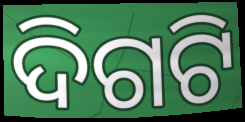
ଦିଗଟି